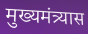
मुख्यमंत्र्यास